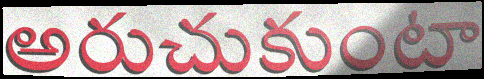
అరుచుకుంటా